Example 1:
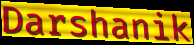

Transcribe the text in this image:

Darshanik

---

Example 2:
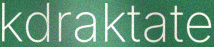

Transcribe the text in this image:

kdraktate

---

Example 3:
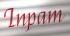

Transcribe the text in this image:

Inpam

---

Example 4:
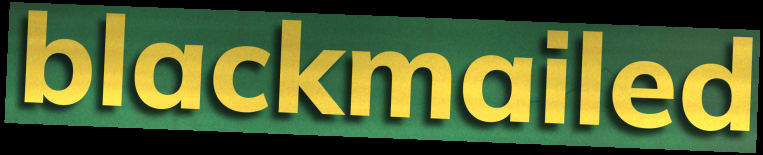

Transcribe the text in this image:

blackmailed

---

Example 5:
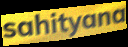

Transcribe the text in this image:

sahityana